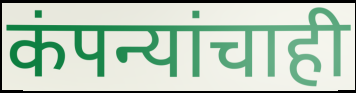
कंपन्यांचाही